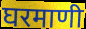
घरमाणी